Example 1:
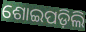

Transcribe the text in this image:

ଶୋଇପଡ଼ିଲି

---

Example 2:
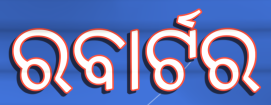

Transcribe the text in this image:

ରବାର୍ଟର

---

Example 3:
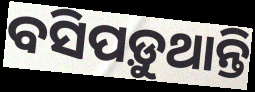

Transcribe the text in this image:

ବସିପଡ଼ୁଥାନ୍ତି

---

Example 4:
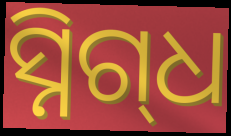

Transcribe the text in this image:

ସ୍ନିଗ୍‌ଧ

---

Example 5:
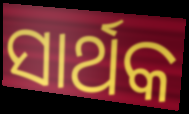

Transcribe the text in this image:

ସାର୍ଥକ